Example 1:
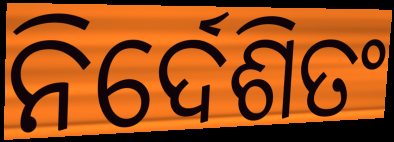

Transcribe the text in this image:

ନିର୍ଦେଶିତଂ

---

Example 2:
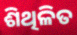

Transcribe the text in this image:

ଶିଥିଳିତ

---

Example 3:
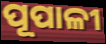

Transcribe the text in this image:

ପୂପାଳୀ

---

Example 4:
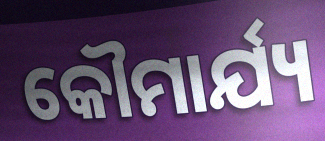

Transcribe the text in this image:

କୌମାର୍ଯ୍ୟ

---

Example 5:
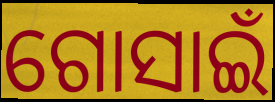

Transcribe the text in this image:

ଗୋସାଇଁ